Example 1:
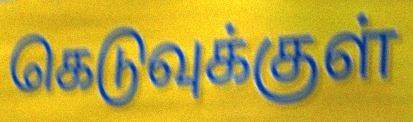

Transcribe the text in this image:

கெடுவுக்குள்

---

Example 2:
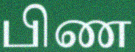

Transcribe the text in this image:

பிண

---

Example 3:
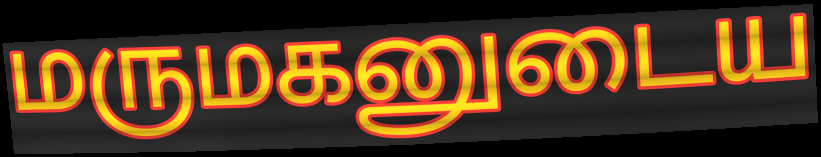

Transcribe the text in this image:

மருமகனுடைய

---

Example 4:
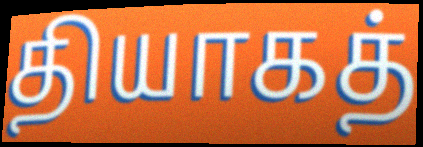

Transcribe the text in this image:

தியாகத்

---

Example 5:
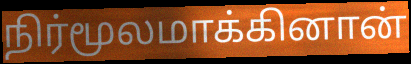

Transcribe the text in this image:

நிர்மூலமாக்கினான்